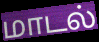
மாடல்